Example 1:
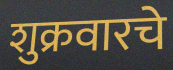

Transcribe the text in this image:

शुक्रवारचे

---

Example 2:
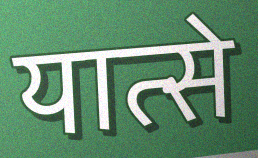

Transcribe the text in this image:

यात्से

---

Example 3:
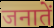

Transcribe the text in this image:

जनातें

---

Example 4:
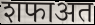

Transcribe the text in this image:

शफाअत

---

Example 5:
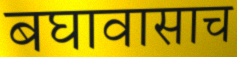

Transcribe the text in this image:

बघावासाच